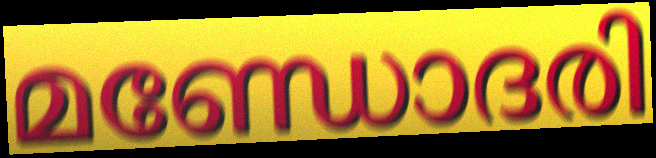
മണ്ഡോദരി